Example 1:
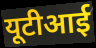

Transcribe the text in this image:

यूटीआई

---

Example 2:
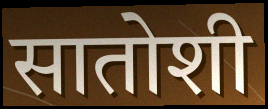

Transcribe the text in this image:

सातोशी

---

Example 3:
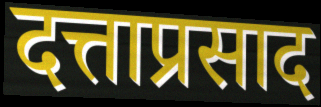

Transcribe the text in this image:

दत्ताप्रसाद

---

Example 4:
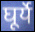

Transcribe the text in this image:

घूर्ये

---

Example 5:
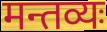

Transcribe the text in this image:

मन्तव्यः